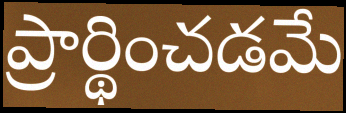
ప్రార్థించడమే